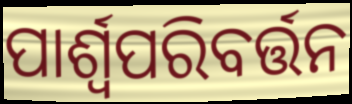
ପାର୍ଶ୍ଵପରିବର୍ତ୍ତନ